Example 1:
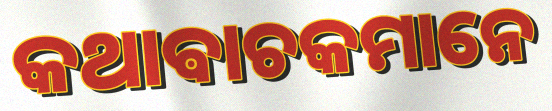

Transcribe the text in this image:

କଥାଵାଚକମାନେ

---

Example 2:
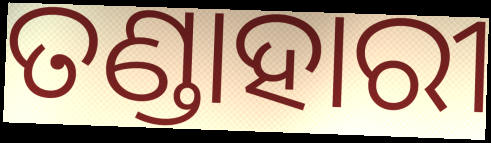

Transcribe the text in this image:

ତଣ୍ଡାହାରୀ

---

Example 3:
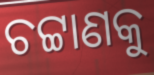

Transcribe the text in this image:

ଚଟ୍ଟାଣକୁ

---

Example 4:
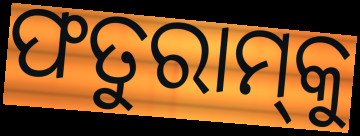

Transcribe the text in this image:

ଫତୁରାମ୍‌କୁ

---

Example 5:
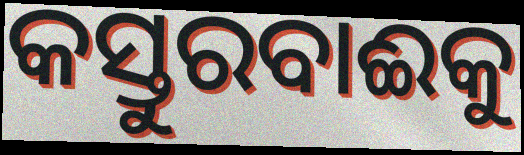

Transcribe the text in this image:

କସ୍ତୁରବାଈକୁ